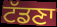
ਟੱਡਣਾ